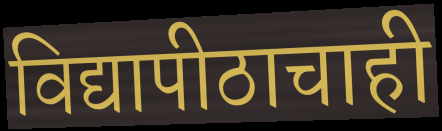
विद्यापीठाचाही